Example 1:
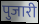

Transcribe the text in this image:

पुजारी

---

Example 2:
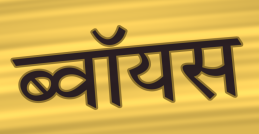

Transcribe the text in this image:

ब्वॉयस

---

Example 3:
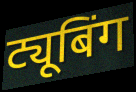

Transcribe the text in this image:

ट्यूबिंग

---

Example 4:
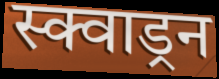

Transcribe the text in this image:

स्क्वाड्रन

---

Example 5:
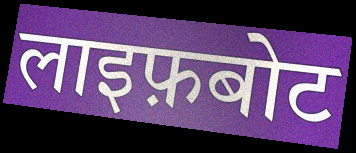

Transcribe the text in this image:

लाइफ़बोट